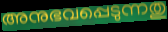
അനുഭവപ്പെടുന്നതു